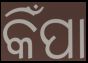
କିଁପା